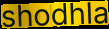
shodhla